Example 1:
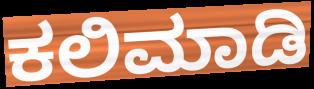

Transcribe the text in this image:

ಕಲಿಮಾಡಿ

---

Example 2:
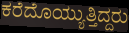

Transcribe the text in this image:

ಕರೆದೊಯ್ಯುತ್ತಿದ್ದರು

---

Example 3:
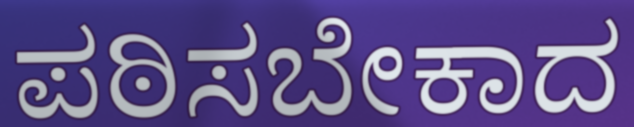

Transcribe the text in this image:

ಪಠಿಸಬೇಕಾದ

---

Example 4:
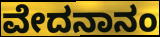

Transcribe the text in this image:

ವೇದನಾನಂ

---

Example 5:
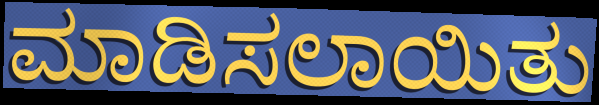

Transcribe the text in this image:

ಮಾಡಿಸಲಾಯಿತು